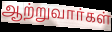
ஆற்றுவார்கள்